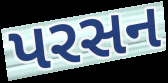
પરસન